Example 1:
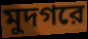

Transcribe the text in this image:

মুদগরে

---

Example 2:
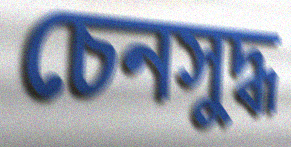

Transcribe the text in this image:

চেনসুদ্ধ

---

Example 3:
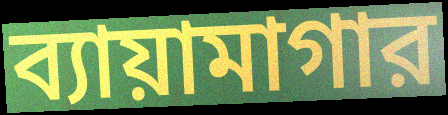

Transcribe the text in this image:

ব্যায়ামাগার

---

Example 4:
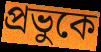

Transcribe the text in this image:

প্রভুকে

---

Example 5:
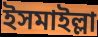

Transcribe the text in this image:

ইসমাইল্লা